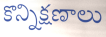
కొన్నిక్షణాలు